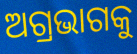
ଅଗ୍ରଭାଗକୁ